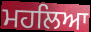
ਮਹਲਿਆ